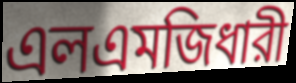
এলএমজিধারী